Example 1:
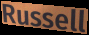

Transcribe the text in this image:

Russell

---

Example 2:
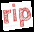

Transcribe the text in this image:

rip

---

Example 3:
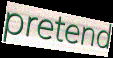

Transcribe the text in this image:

pretend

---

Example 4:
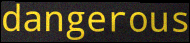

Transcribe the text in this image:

dangerous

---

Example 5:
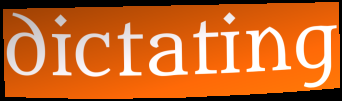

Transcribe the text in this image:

dictating